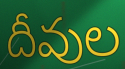
దీవుల